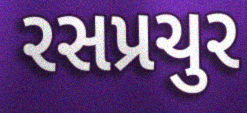
રસપ્રચુર